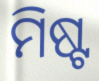
ମିଷ୍ଟ